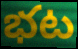
భట